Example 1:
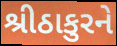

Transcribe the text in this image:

શ્રીઠાકુરને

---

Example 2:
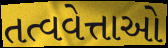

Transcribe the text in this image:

તત્વવેત્તાઓ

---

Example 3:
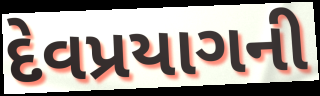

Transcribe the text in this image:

દેવપ્રયાગની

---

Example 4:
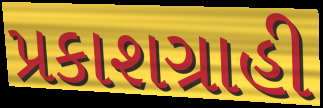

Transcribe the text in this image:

પ્રકાશગ્રાહી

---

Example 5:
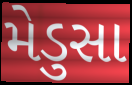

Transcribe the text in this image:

મેડુસા